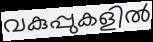
വകുപ്പുകളിൽ